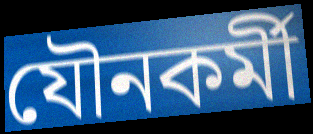
যৌনকর্মী